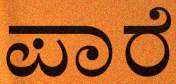
ಪಾರೆ